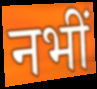
नभीं